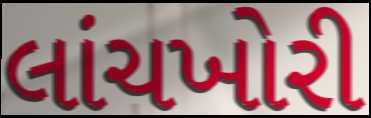
લાંચખોરી